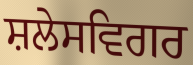
ਸ਼ਲੇਸਵਿਗਰ